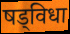
षड्विधा